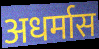
अधर्मास